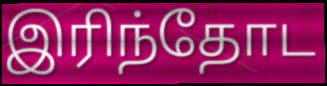
இரிந்தோட